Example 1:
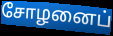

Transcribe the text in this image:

சோழனைப்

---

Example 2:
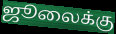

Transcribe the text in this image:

ஜூலைக்கு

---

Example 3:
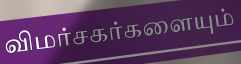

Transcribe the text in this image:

விமர்சகர்களையும்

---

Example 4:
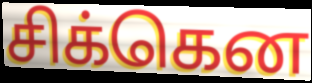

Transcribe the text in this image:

சிக்கென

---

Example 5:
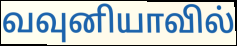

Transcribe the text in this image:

வவுனியாவில்